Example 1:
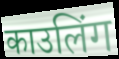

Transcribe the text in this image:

काउलिंग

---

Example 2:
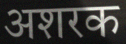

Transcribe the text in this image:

अशरक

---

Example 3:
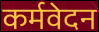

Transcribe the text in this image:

कर्मवेदन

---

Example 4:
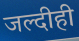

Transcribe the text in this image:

जल्दीही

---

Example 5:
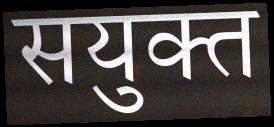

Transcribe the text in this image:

सयुक्‍त